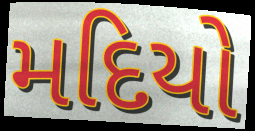
મદિયો